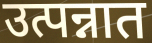
उत्पन्नात